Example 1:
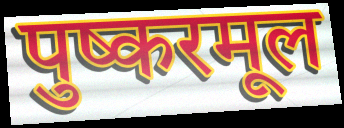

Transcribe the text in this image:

पुष्करमूल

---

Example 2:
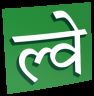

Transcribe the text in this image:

ल्वे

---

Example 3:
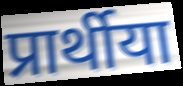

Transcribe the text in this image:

प्रार्थीया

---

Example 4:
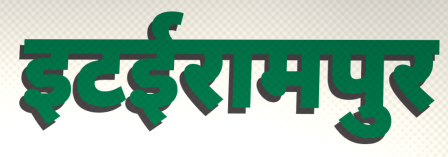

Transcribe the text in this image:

इटईरामपुर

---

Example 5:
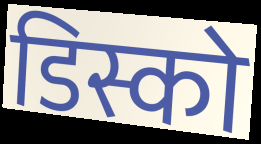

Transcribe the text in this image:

डिस्को